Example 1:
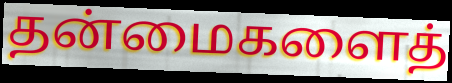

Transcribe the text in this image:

தன்மைகளைத்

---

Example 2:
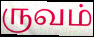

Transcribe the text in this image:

ருவம்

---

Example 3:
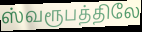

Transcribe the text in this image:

ஸ்வரூபத்திலே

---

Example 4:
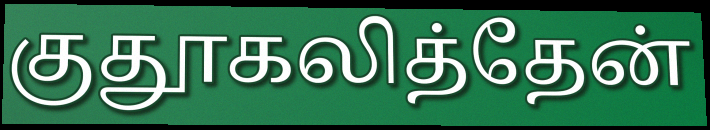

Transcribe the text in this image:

குதூகலித்தேன்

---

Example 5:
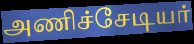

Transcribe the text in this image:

அணிச்சேடியர்